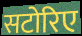
सटोरिए